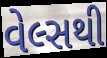
વેલ્સથી